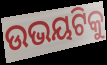
ଉଭୟଟିକୁ